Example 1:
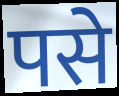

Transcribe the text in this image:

पसे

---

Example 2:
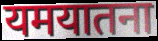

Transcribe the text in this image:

यमयातना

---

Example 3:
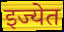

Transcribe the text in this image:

इज्येत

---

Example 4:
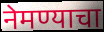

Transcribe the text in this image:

नेमण्याचा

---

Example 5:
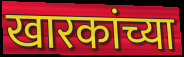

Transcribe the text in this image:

खारकांच्या